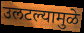
उलटल्यामुळे